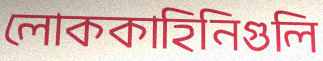
লোককাহিনিগুলি